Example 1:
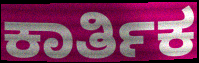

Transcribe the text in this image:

ಕಾರ್ತಿಕ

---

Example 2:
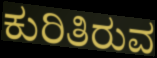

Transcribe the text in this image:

ಕುರಿತಿರುವ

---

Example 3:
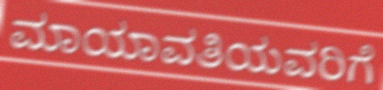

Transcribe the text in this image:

ಮಾಯಾವತಿಯವರಿಗೆ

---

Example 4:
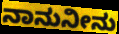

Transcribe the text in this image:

ನಾನುನೀನು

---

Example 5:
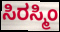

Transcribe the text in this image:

ಸಿರಸ್ಮಿಂ